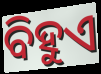
ବିହୁଏ